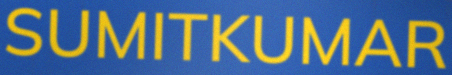
SUMITKUMAR